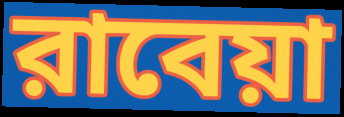
রাবেয়া